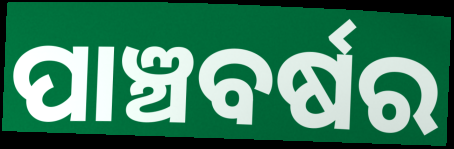
ପାଞ୍ଚବର୍ଷର